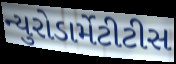
ન્યુરોડાર્મેટીટીસ